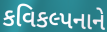
કવિકલ્પનાને